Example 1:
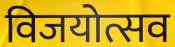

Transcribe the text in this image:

विजयोत्सव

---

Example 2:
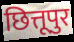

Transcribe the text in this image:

छित्तूपुर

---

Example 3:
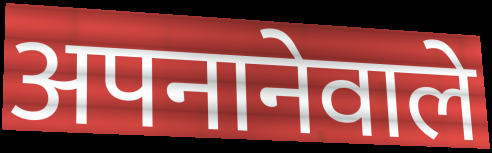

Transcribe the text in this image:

अपनानेवाले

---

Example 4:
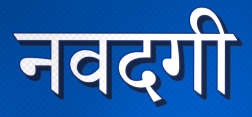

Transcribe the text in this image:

नवदगी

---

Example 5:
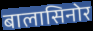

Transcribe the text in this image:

बालासिनोर